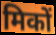
मिकों